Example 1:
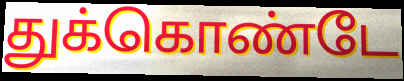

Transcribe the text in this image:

துக்கொண்டே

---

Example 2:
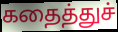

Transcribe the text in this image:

கதைத்துச்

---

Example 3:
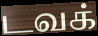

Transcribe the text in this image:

டவக்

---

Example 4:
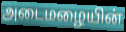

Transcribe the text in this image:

அடைமழையின்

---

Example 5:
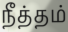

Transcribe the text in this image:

நீத்தம்